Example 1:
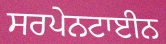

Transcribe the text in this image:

ਸਰਪੇਨਟਾਈਨ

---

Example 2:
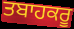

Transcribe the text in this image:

ਤਬਾਹਕਰੂ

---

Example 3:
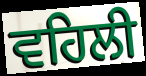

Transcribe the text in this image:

ਵਹਿਲੀ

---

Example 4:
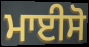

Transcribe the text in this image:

ਮਾਈਸੋ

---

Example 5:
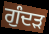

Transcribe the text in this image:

ਗੁੰਦੜ